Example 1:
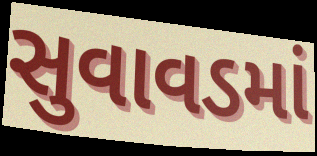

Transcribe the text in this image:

સુવાવડમાં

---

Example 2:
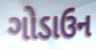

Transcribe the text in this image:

ગોડાઉન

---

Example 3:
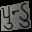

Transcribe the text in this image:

પુન્ડુ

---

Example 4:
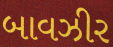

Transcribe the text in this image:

બાવઝીર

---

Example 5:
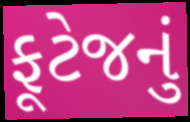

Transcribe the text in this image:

ફૂટેજનું